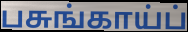
பசுங்காய்ப்